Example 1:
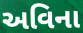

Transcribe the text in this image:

અવિના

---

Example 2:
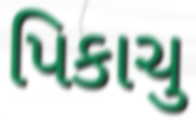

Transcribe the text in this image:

પિકાચુ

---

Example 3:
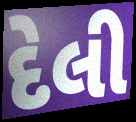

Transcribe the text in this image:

દેલી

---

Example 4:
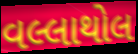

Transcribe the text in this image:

વલ્લાથોલ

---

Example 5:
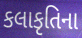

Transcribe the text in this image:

કલાકૃતિના